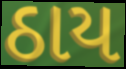
ઠાય